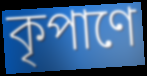
কৃপাণে